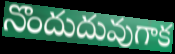
నొందుదువుగాక